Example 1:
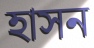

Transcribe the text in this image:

হাসন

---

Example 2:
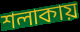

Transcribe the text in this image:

শলাকায়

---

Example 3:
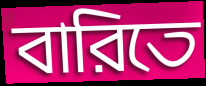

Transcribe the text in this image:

বারিতে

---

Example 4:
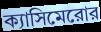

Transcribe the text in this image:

ক্যাসিমেরোর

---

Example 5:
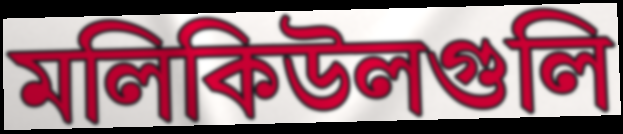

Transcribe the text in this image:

মলিকিউলগুলি